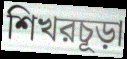
শিখরচূড়া